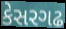
કેસરગઢ